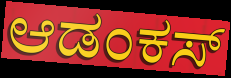
ಆಡಂಕಸ್